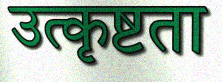
उत्कृष्टता